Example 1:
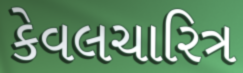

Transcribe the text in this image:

કેવલચારિત્ર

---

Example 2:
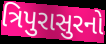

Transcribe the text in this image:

ત્રિપુરાસુરનો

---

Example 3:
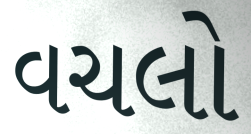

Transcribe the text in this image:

વચલો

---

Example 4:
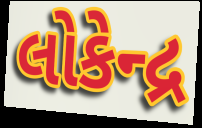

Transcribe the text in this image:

લોકેન્દ્ર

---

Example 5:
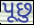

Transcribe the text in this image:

પૂછુ